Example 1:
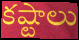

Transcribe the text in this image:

కష్టాలు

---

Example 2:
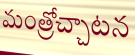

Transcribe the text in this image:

మంత్రోచ్చాటన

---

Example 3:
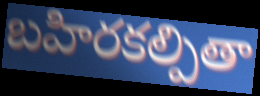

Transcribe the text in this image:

బహిరకల్పితా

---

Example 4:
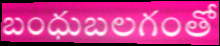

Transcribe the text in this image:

బంధుబలగంతో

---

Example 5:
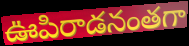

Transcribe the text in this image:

ఊపిరాడనంతగా